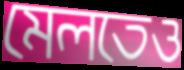
মেলতেও